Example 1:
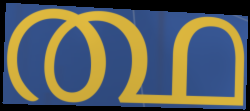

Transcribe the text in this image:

ത്ഥ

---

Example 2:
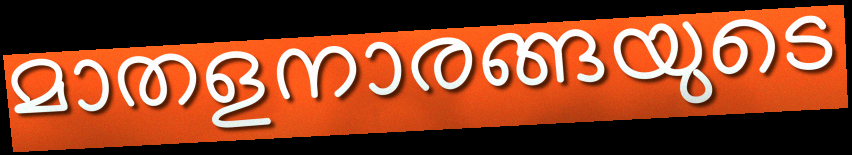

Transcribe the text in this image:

മാതളനാരങ്ങയുടെ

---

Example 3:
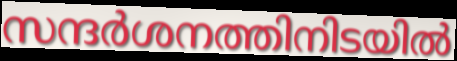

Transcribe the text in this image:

സന്ദർശനത്തിനിടയിൽ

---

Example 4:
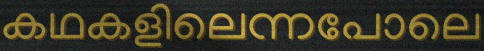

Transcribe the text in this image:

കഥകളിലെന്നപോലെ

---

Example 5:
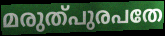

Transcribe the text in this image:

മരുത്പുരപതേ